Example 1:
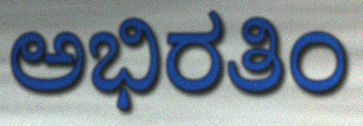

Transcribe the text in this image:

ಅಭಿರತಿಂ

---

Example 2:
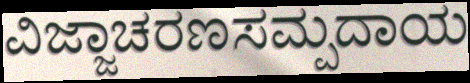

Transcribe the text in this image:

ವಿಜ್ಜಾಚರಣಸಮ್ಪದಾಯ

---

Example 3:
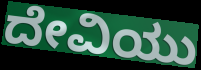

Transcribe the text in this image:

ದೇವಿಯು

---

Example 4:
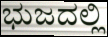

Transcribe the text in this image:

ಭುಜದಲ್ಲಿ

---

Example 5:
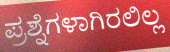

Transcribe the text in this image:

ಪ್ರಶ್ನೆಗಳಾಗಿರಲಿಲ್ಲ